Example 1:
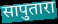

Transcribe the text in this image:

सापुतारा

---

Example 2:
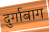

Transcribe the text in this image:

दुर्गाबाग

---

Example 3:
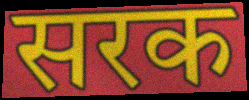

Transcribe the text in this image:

सरक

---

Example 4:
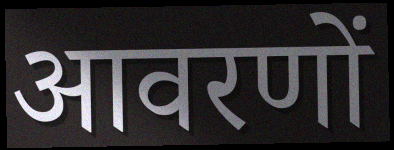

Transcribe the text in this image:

आवरणों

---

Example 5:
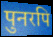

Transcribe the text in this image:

पुनरपि